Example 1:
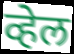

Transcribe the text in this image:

व्हेल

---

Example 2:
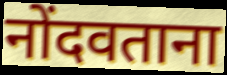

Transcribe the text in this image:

नोंदवताना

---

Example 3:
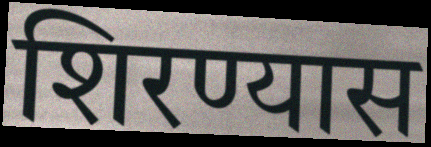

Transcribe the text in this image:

शिरण्यास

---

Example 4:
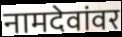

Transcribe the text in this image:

नामदेवांवर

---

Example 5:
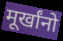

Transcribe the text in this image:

मूर्खांनो